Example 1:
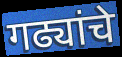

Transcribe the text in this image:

गढ्यांचे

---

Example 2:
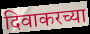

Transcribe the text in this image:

दिवाकरच्या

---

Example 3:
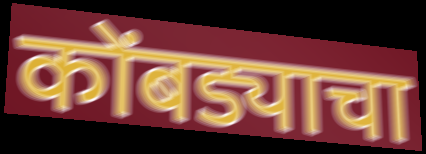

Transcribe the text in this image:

कोंबड्याचा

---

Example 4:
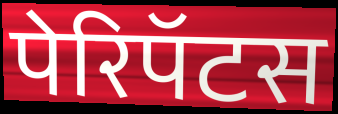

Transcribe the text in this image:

पेरिपॅटस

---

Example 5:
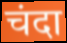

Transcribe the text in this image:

चंदा